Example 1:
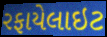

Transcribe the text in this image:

રફાયેલાઇટ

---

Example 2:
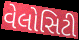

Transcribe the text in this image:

વેલોસિટી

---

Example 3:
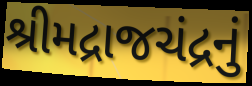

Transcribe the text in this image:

શ્રીમદ્રાજચંદ્રનું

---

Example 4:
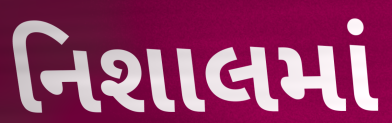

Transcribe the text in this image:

નિશાલમાં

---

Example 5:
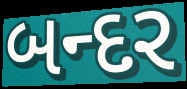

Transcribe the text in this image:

બન્દર